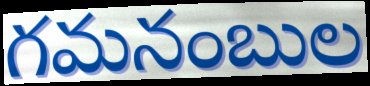
గమనంబుల